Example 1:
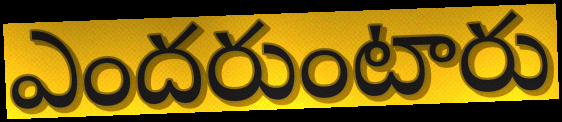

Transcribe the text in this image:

ఎందరుంటారు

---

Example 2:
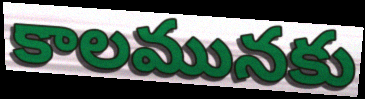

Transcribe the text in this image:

కాలమునకు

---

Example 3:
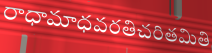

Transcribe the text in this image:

రాధామాధవరతిచరితమితి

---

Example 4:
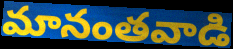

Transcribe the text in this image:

మానంతవాడి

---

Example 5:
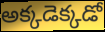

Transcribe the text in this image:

అక్కడెక్కడో